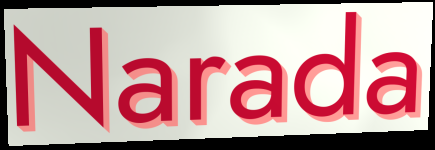
Narada